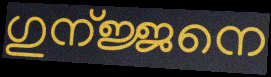
ഗുന്ജ്ജനെ